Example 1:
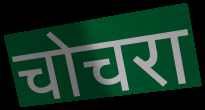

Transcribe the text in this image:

चोचरा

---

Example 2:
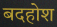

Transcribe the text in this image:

बदहोश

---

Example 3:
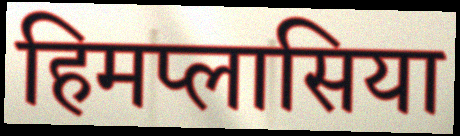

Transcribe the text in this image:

हिमप्लासिया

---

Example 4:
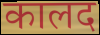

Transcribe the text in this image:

कालद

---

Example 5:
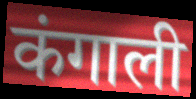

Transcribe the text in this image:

कंगाली